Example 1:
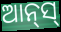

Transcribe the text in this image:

ଆନ୍‌ସ୍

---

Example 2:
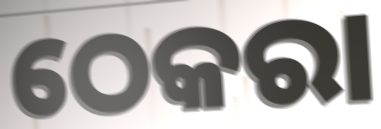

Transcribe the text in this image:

ଠେକରା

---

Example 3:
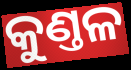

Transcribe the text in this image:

କୁଣ୍ତଳ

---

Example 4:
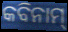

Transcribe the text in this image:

କବିନାମ୍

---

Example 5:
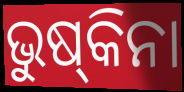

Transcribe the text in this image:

ଭୁଷ୍‌କିନା